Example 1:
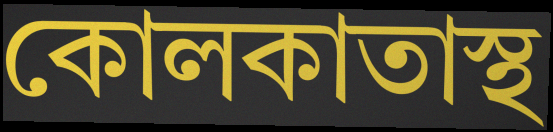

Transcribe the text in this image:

কোলকাতাস্থ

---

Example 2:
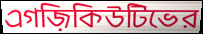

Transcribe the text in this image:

এগজ়িকিউটিভের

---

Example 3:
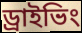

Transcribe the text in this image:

ড্রাইভিং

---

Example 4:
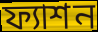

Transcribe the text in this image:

ফ্যাশন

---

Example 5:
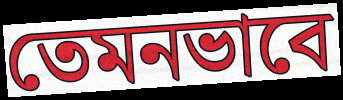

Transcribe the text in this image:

তেমনভাবে